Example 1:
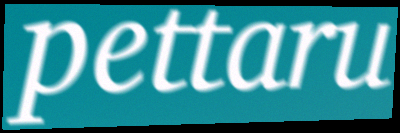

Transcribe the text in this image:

pettaru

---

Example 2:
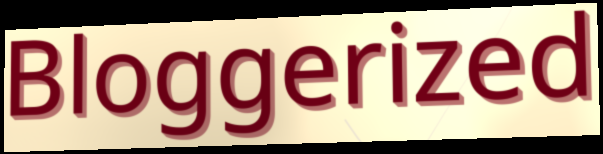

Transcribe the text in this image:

Bloggerized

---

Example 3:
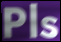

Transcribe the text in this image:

Pls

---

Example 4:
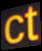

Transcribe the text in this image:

ct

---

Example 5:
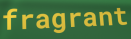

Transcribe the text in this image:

fragrant